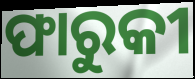
ଫାରୁକୀ